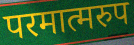
परमात्मरुप